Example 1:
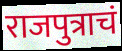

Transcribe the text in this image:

राजपुत्राचं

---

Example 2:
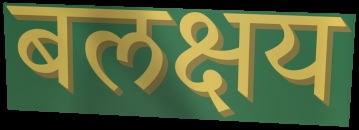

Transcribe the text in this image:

बलक्षय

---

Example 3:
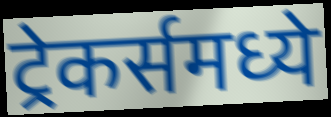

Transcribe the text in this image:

ट्रेकर्समध्ये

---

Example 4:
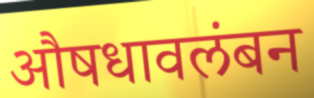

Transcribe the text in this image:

औषधावलंबन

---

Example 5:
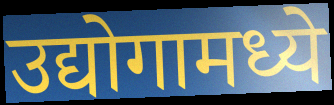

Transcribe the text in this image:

उद्योगामध्ये